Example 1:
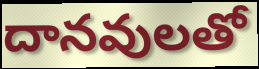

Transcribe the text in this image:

దానవులతో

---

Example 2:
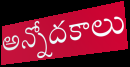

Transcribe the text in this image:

అన్నోదకాలు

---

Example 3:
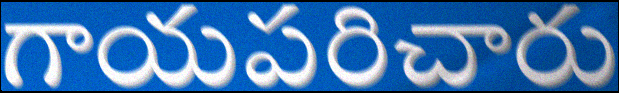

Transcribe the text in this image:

గాయపరిచారు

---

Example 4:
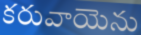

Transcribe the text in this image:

కరువాయెను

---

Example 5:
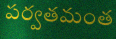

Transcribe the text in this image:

పర్వతమంత